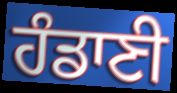
ਹੰਡਾਣੀ